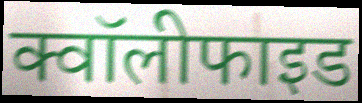
क्वॉलीफाइड